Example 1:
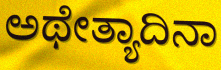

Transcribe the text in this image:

ಅಥೇತ್ಯಾದಿನಾ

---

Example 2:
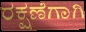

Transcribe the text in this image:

ರಕ್ಷಣೆಗಾಗಿ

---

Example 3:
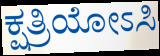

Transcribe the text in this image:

ಕ್ಷತ್ರಿಯೋಽಸಿ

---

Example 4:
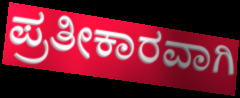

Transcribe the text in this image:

ಪ್ರತೀಕಾರವಾಗಿ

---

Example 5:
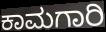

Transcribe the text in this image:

ಕಾಮಗಾರಿ